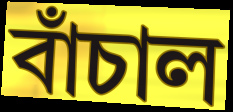
বাঁচাল